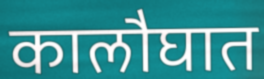
कालौघात